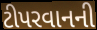
ટીપરવાનની